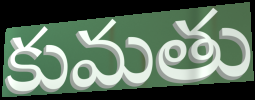
కుమతు